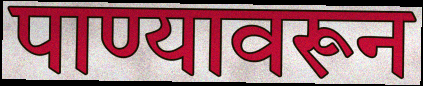
पाण्यावरून